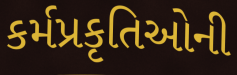
કર્મપ્રકૃતિઓની